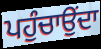
ਪਹੁੰਚਾਉਂਦਾ